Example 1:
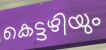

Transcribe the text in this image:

കെട്ടഴിയും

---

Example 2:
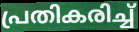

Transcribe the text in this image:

പ്രതികരിച്ച്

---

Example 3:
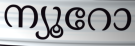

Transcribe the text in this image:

ന്യൂറോ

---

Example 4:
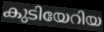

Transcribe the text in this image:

കുടിയേറിയ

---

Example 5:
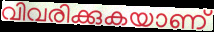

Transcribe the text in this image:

വിവരിക്കുകയാണ്